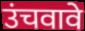
उंचवावे